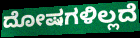
ದೋಷಗಳಿಲ್ಲದೆ